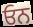
ਓਨ